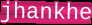
jhankhe